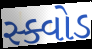
સ્ક્વોડ